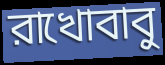
রাখোবাবু